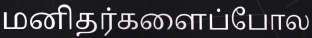
மனிதர்களைப்போல